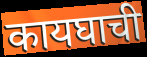
कायघाची